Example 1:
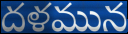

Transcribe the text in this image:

దళమున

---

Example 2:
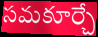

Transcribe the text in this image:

సమకూర్చే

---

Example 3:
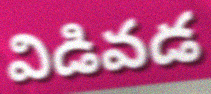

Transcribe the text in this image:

విడివడ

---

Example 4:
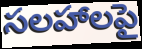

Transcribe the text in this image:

సలహాలపై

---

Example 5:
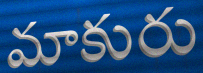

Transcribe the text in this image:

మాకురు